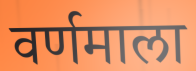
वर्णमाला